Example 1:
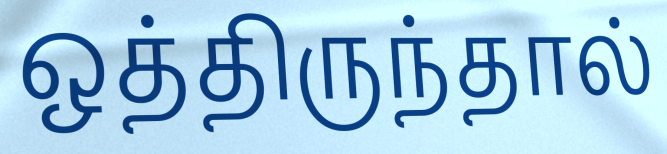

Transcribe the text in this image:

ஒத்திருந்தால்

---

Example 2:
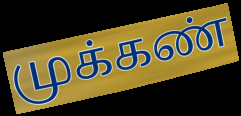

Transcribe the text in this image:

முக்கண்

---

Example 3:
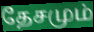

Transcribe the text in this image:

தேசமும்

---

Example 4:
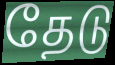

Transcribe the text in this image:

தேடு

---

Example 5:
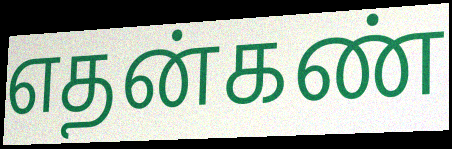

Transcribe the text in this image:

எதன்கண்